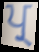
ਪ੍ਰ